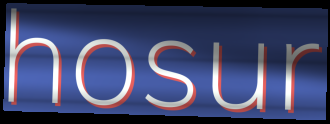
hosur